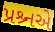
પ્રશ્ર્નએ